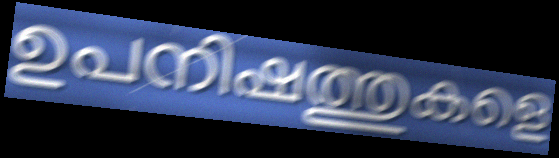
ഉപനിഷത്തുകളെ